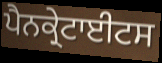
ਪੈਨਕ੍ਰੇਟਾਈਟਸ